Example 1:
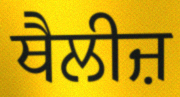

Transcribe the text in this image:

ਥੈਲੀਜ਼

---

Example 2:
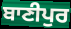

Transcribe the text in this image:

ਬਾਣੀਪੁਰ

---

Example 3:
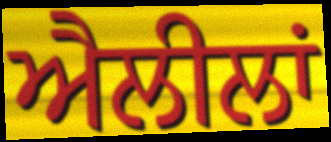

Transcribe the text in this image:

ਐਲੀਲਾਂ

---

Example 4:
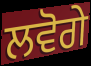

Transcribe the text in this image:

ਲਵੋਗੇ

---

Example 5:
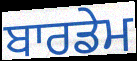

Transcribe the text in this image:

ਬਾਰਡੇਮ